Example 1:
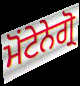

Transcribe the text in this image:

ਮੋਂਟੇਨੇਗ੍ਰੋ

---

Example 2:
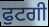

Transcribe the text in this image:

ਫੁਟਗੀ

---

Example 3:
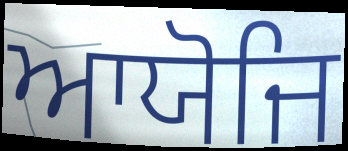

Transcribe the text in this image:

ਆਯੋਜਿ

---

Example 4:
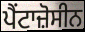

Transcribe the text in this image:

ਪੈਂਟਾਜ਼ੋਸੀਨ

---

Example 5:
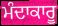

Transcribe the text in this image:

ਮੰਦਾਕਾਰੂ